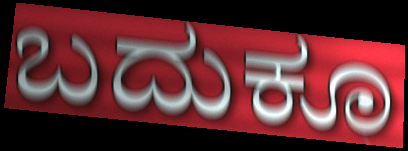
ಬದುಕೂ